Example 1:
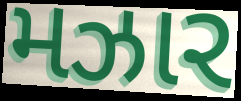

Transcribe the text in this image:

મઝાર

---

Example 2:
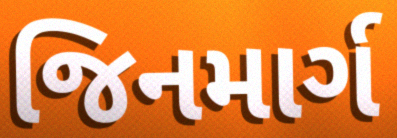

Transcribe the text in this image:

જિનમાર્ગ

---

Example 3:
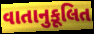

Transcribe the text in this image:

વાતાનુકૂલિત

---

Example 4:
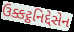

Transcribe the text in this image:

ઉક્કટ્ઠનિદ્દેસેન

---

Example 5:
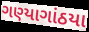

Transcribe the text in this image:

ગણ્યાગાંઠયા